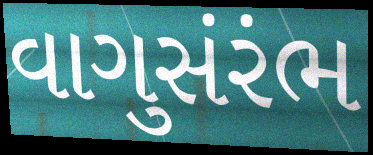
વાગુસંરંભ